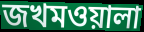
জখমওয়ালা